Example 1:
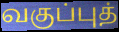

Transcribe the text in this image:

வகுப்புத்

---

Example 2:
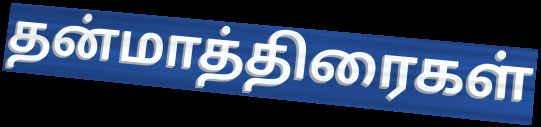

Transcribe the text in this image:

தன்மாத்திரைகள்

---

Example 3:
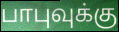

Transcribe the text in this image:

பாபுவுக்கு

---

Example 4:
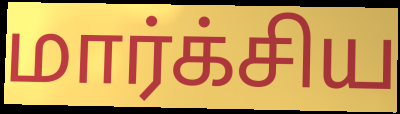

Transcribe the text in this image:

மார்க்சிய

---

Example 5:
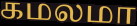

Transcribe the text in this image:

கமலமா